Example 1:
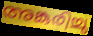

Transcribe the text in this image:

അങ്കുരിച്ചു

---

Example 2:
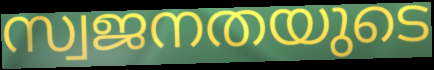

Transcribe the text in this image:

സ്വജനതയുടെ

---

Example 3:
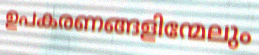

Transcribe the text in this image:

ഉപകരണങ്ങളിന്മേലും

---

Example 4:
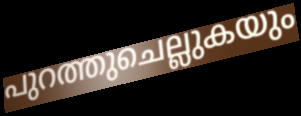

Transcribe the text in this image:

പുറത്തുചെല്ലുകയും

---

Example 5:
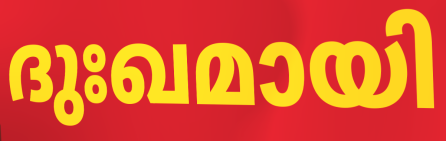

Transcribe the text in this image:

ദുഃഖമായി